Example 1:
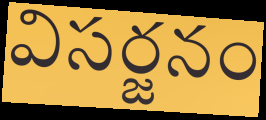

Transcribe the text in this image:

విసర్జనం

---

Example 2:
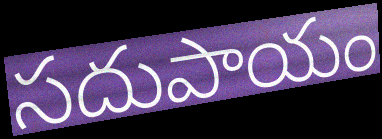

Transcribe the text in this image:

సదుపాయం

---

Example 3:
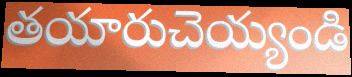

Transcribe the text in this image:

తయారుచెయ్యండి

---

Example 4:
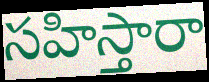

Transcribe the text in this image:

సహిస్తారా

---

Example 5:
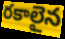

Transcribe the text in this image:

రకాలైన